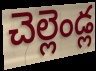
చెల్లెండ్ల